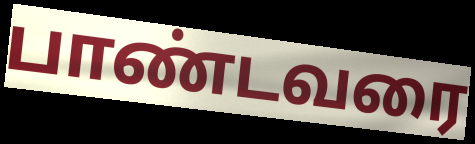
பாண்டவரை